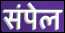
संपेल